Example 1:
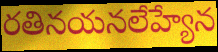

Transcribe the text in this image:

రతినయనలేహ్యేన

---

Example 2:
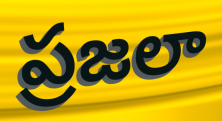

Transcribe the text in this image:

ప్రజలా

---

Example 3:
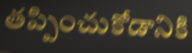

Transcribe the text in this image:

తప్పించుకోడానికి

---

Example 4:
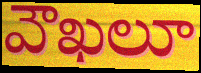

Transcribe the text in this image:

వౌఖలూ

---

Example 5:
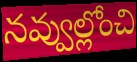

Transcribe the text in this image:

నవ్వుల్లోంచి